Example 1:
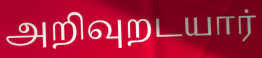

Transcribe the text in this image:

அறிவுறடயார்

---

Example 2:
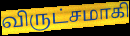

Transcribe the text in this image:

விருட்சமாகி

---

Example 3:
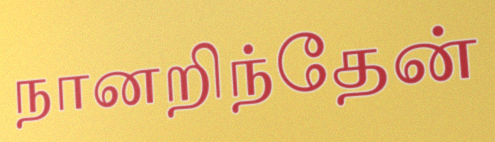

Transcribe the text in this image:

நானறிந்தேன்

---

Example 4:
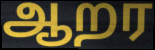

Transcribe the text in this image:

ஆறர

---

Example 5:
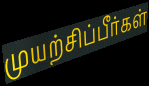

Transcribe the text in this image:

முயற்சிப்பீர்கள்